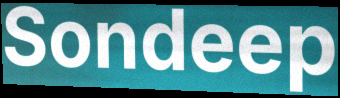
Sondeep